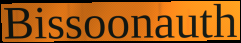
Bissoonauth